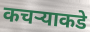
कचऱ्याकडे